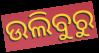
ଉଲିବୁରୁ